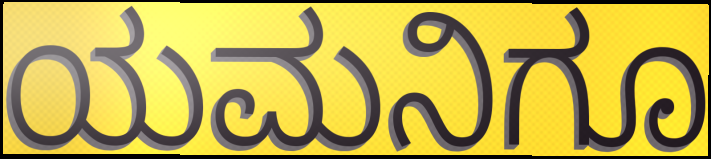
ಯಮನಿಗೂ